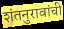
शंतनुरावांची